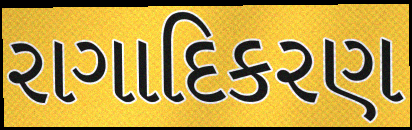
રાગાદિકરણ